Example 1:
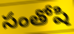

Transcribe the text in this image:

సంతోషి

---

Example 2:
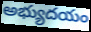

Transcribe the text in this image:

అభ్యుదయం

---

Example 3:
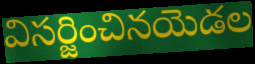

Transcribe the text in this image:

విసర్జించినయెడల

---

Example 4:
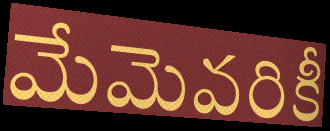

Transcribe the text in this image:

మేమెవరికీ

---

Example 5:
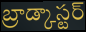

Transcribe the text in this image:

బ్రాడ్కాస్టర్